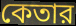
কেতার